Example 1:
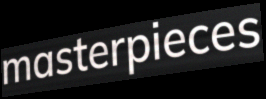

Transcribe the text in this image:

masterpieces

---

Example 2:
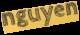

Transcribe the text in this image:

nguyen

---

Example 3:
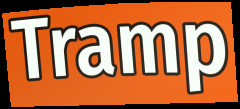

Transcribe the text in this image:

Tramp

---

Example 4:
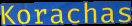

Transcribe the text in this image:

Korachas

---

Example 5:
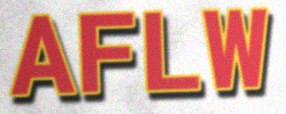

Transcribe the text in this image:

AFLW